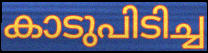
കാടുപിടിച്ച